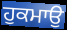
ਹੁਕਮਾਉ